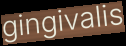
gingivalis